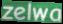
zelwa